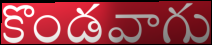
కొండవాగు